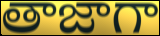
తాజాగా